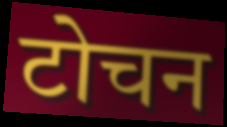
टोचन